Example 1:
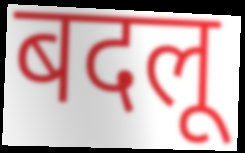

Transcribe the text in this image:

बदलू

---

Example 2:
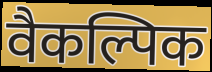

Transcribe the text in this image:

वैकल्पिक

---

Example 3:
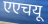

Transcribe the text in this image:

एएचयू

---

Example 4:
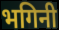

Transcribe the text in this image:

भगिनी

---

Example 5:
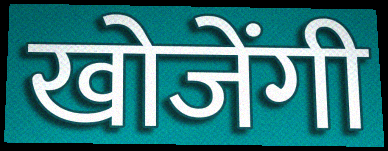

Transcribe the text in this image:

खोजेंगी